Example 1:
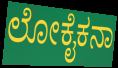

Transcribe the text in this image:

ಲೋಕೈಕನಾ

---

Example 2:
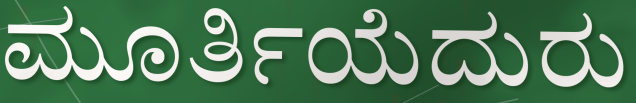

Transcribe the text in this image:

ಮೂರ್ತಿಯೆದುರು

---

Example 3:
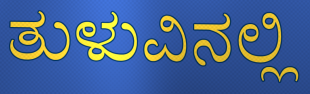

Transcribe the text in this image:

ತುಳುವಿನಲ್ಲಿ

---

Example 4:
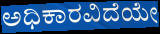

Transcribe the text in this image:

ಅಧಿಕಾರವಿದೆಯೇ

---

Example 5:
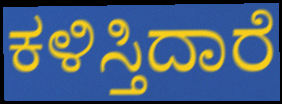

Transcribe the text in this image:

ಕಳಿಸ್ತಿದಾರೆ